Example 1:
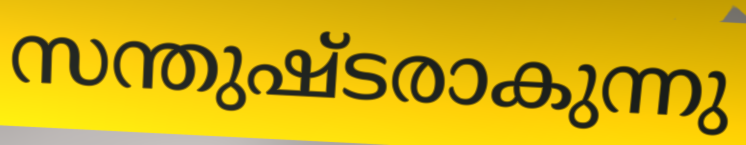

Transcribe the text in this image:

സന്തുഷ്ടരാകുന്നു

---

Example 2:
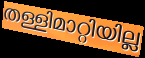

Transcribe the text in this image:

തള്ളിമാറ്റിയില്ല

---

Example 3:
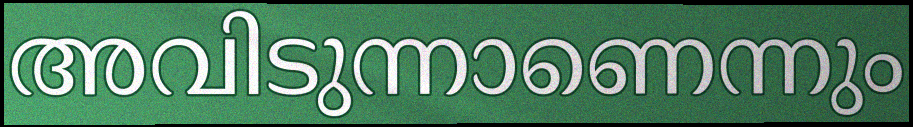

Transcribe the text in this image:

അവിടുന്നാണെന്നും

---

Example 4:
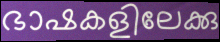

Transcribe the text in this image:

ഭാഷകളിലേക്കു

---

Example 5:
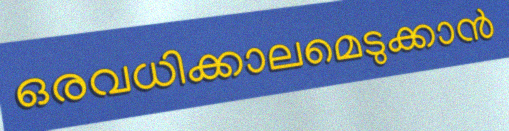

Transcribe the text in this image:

ഒരവധിക്കാലമെടുക്കാൻ